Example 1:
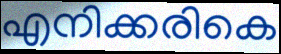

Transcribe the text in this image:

എനിക്കരികെ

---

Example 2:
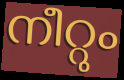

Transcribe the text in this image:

നീറ്റും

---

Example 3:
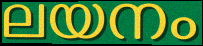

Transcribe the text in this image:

ലയനം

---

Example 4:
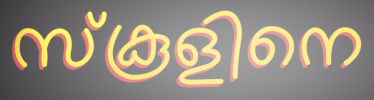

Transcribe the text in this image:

സ്കൂളിനെ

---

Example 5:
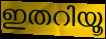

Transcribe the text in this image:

ഇതറിയൂ